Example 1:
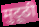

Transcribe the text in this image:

मुटूठी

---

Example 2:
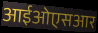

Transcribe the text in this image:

आईओएसआर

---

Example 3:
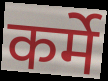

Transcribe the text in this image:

कर्मे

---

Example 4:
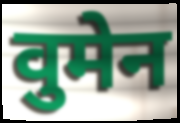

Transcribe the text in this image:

वुमेन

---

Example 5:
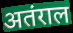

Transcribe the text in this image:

अतंराल